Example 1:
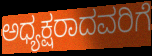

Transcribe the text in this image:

ಅಧ್ಯಕ್ಷರಾದವರಿಗೆ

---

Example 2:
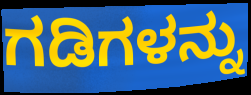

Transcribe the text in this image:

ಗಡಿಗಳನ್ನು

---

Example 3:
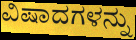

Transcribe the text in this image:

ವಿಷಾದಗಳನ್ನು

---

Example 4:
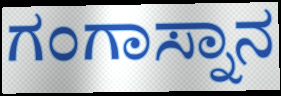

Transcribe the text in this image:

ಗಂಗಾಸ್ನಾನ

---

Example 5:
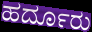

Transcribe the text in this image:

ಹರ್ದೂರು